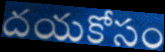
దయకోసం